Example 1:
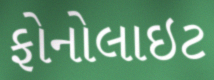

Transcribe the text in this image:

ફોનોલાઇટ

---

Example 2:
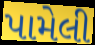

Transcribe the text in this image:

પામેલી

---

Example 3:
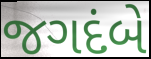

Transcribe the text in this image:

જગદંબે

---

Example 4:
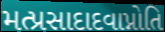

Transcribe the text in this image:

મત્પ્રસાદાદવાપ્નોતિ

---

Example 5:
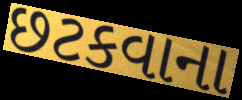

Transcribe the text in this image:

છટકવાના